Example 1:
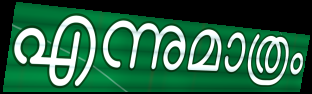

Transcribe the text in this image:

എന്നുമാത്രം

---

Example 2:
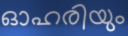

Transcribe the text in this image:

ഓഹരിയും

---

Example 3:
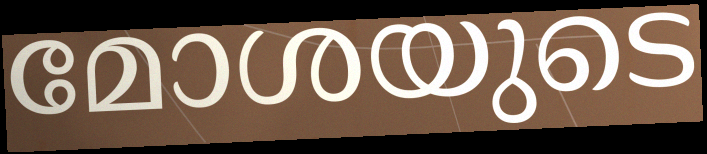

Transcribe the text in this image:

മോശയുടെ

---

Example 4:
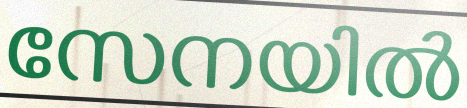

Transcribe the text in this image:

സേനയിൽ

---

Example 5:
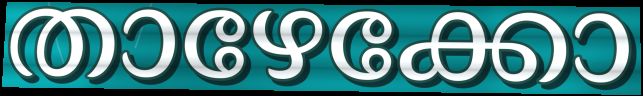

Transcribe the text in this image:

താഴേക്കോ